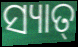
ସ୍ୟାତ୍